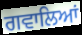
ਗਵਾਲਿਆਂ